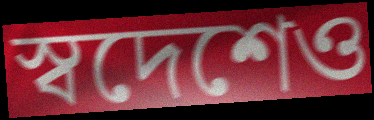
স্বদেশেও